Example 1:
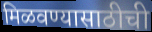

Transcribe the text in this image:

मिळवण्यासाठीची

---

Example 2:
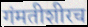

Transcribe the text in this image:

गंमतीशीरच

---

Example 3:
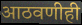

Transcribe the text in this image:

आठवणीही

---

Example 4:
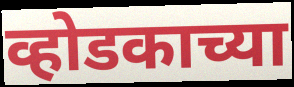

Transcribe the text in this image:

व्होडकाच्या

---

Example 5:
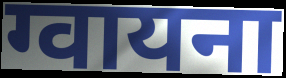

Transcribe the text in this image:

ग्वायना